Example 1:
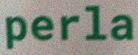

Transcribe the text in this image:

perla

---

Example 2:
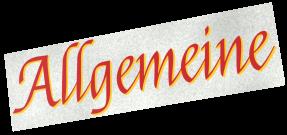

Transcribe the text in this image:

Allgemeine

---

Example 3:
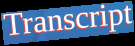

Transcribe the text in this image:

Transcript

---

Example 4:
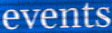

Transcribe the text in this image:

events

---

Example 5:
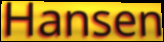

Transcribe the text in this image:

Hansen